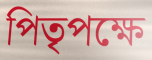
পিতৃপক্ষে